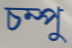
চম্পু